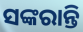
ସଙ୍କରାନ୍ତି